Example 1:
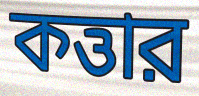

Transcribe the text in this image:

কত্তার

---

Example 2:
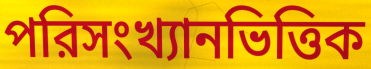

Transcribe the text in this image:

পরিসংখ্যানভিত্তিক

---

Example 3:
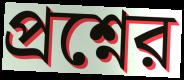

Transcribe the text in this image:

প্রশ্নের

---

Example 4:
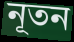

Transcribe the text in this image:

নূতন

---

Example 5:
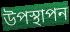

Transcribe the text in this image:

উপস্থাপন